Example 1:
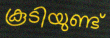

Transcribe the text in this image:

കൂടിയുണ്ട്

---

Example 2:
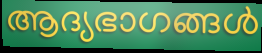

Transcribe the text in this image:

ആദ്യഭാഗങ്ങൾ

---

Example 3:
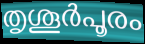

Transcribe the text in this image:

തൃശൂർപൂരം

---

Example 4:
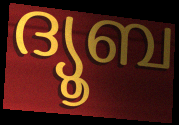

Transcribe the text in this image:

ദ്യൂബ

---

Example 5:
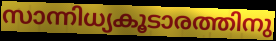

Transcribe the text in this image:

സാന്നിധ്യകൂടാരത്തിനു